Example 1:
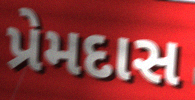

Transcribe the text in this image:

પ્રેમદાસ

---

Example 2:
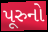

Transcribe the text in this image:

પૂરુનો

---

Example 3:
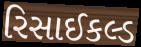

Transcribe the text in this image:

રિસાઈકલ્ડ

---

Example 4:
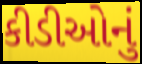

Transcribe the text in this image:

કીડીઓનું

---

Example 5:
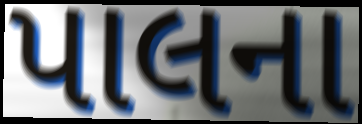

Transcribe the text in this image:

પાલના